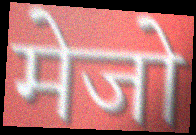
मेजो